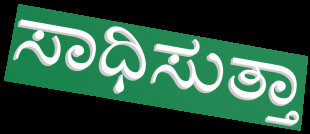
ಸಾಧಿಸುತ್ತಾ